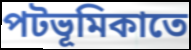
পটভূমিকাতে